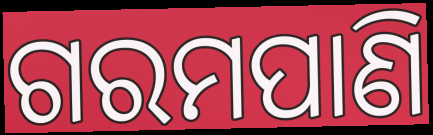
ଗରମପାଣି